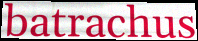
batrachus